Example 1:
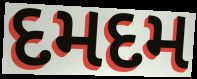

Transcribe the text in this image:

દમદમ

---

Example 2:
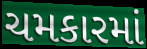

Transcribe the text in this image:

ચમકારમાં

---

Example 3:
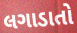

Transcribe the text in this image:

લગાડાતો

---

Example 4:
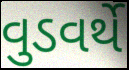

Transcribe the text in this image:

વુડવર્થે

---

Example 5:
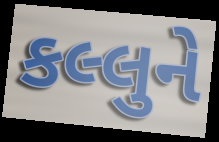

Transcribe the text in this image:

કલ્લુને